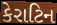
કેરાટિન